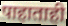
पाहाताही